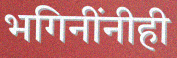
भगिनींनीही